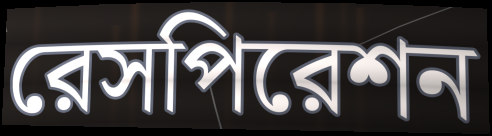
রেসপিরেশন